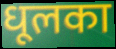
धूलका